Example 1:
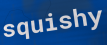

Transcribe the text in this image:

squishy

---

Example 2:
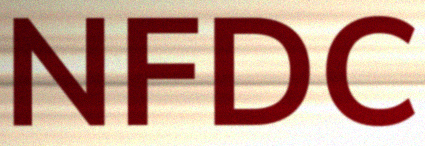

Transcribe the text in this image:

NFDC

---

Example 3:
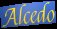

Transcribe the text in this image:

Alcedo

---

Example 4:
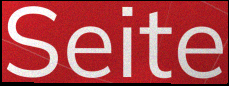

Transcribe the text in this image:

Seite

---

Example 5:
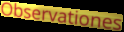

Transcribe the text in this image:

Observationes